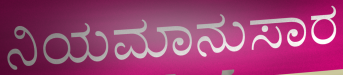
ನಿಯಮಾನುಸಾರ